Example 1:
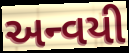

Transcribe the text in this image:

અન્વયી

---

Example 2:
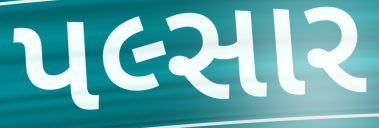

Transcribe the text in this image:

પલ્સાર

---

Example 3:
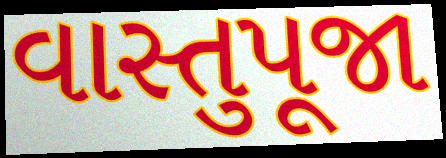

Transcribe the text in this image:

વાસ્તુપૂજા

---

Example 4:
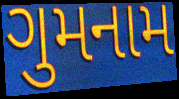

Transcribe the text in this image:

ગુમનામ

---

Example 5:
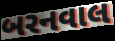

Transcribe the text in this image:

બરનવાલ